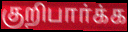
குறிபார்க்க